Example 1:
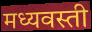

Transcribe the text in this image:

मध्यवस्ती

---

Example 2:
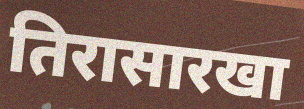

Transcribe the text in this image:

तिरासारखा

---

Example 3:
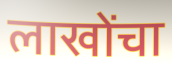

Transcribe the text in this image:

लाखोंचा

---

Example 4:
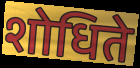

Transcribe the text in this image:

शोधिते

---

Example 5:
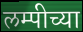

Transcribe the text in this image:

लम्पीच्या